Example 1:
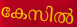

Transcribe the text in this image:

കേസിൽ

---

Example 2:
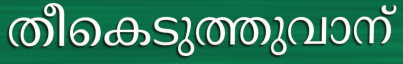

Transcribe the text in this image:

തീകെടുത്തുവാന്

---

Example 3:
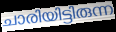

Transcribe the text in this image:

ചാരിയിട്ടിരുന്ന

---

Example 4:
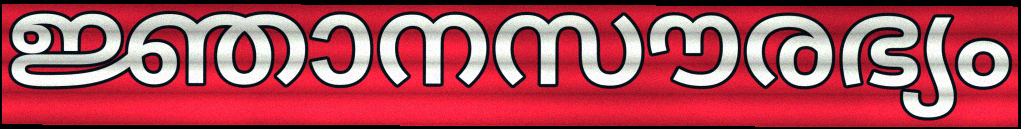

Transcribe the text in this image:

ജ്ഞാനസൗരഭ്യം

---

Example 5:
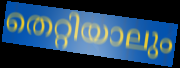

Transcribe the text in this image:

തെറ്റിയാലും